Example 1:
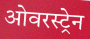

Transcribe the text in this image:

ओवरस्ट्रेन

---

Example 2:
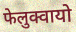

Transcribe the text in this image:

फेलुक्वायो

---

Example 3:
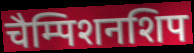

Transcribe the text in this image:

चैम्पिशनशिप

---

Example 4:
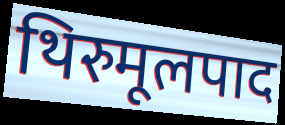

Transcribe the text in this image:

थिरुमूलपाद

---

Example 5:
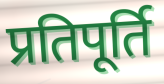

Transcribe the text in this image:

प्रतिपूर्ति